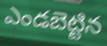
ఎండబెట్టిన